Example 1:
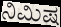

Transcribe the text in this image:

ನಿಮಿಷ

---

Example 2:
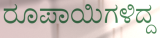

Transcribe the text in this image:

ರೂಪಾಯಿಗಳಿದ್ದ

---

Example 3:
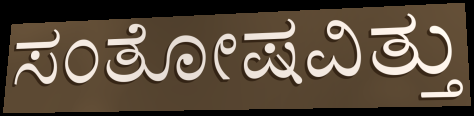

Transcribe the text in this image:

ಸಂತೋಷವಿತ್ತು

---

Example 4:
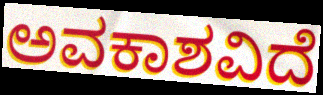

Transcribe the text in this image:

ಅವಕಾಶವಿದೆ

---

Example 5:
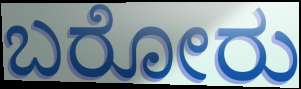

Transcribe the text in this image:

ಬರೋರು